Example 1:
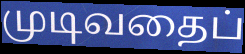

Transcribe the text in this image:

முடிவதைப்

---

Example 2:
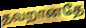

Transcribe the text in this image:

தவறானதே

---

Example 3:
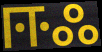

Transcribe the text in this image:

ஈஃ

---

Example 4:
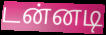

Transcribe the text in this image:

டன்னடி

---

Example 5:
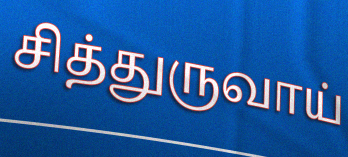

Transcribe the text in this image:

சித்துருவாய்